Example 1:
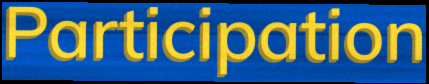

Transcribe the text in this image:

Participation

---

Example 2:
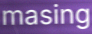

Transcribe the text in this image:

masing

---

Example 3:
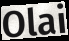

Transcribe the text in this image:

Olai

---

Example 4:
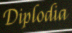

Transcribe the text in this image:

Diplodia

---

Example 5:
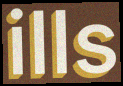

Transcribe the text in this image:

ills